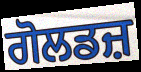
ਗੋਲਡਜ਼